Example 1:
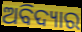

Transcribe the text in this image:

ଅବିଦ୍ୟାର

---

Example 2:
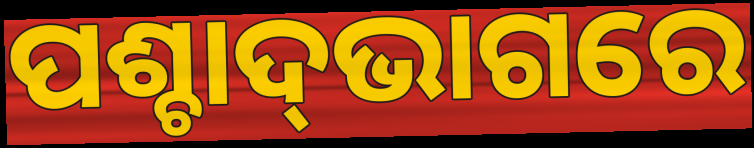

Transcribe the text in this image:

ପଶ୍ଚାଦ୍‍ଭାଗରେ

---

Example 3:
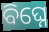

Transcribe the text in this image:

ବିଘ୍ନେ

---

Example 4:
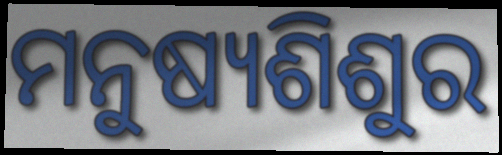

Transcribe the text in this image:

ମନୁଷ୍ୟଶିଶୁର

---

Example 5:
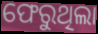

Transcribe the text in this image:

ଫେରୁଥିଲା